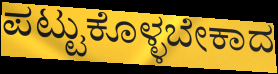
ಪಟ್ಟುಕೊಳ್ಳಬೇಕಾದ